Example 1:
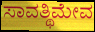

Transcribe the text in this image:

ಸಾವತ್ಥಿಮೇವ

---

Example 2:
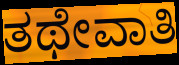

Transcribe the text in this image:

ತಥೇವಾತಿ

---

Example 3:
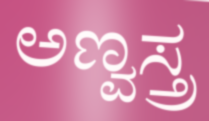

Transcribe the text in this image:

ಅಣ್ವಸ್ತ್ರ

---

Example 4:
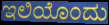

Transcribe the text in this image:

ಇಲಿಯೊಂದು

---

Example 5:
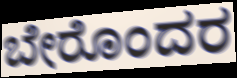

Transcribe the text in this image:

ಬೇರೊಂದರ